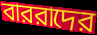
বাররাদের